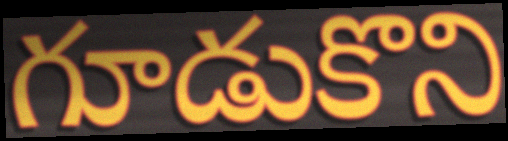
గూడుకొని